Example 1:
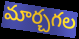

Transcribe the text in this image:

మార్చగల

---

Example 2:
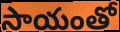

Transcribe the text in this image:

సాయంతో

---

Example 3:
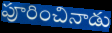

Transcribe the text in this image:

పూరించినాడు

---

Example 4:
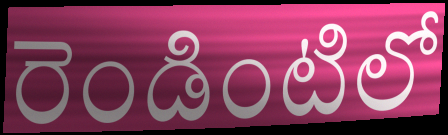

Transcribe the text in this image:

రెండింటిలో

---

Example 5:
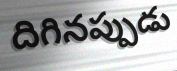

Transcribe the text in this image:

దిగినప్పుడు